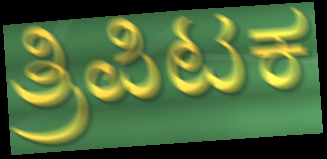
ತ್ರಿಪಿಟಕ